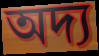
অদ্য